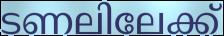
ടണലിലേക്ക്